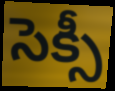
సెక్సీ